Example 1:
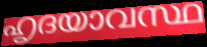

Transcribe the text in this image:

ഹൃദയാവസ്ഥ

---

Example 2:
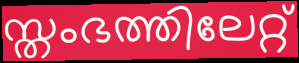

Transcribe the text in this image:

സ്തംഭത്തിലേറ്റ്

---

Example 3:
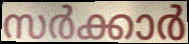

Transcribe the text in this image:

സർക്കാർ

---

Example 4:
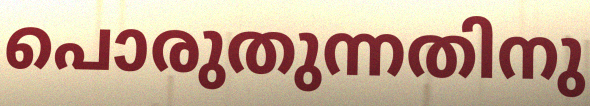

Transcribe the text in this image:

പൊരുതുന്നതിനു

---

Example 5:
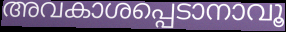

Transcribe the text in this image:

അവകാശപ്പെടാനാവൂ